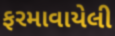
ફરમાવાયેલી